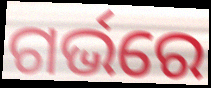
ଗର୍ଭରେ